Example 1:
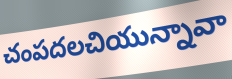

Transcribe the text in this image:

చంపదలచియున్నావా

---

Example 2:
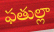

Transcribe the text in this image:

ఫతుల్లా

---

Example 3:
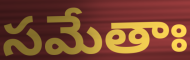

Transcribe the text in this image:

సమేతాః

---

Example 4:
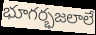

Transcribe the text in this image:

భూగర్భజలాలే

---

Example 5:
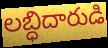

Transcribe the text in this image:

లబ్ధిదారుడి